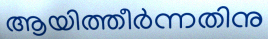
ആയിത്തീർന്നതിനു